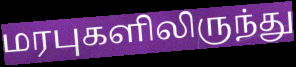
மரபுகளிலிருந்து